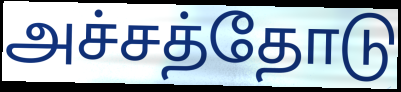
அச்சத்தோடு